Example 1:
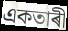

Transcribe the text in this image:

একতাৰী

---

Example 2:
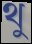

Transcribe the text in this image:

থু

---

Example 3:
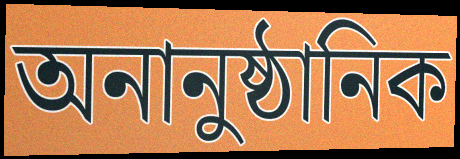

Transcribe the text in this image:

অনানুষ্ঠানিক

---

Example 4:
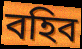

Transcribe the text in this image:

বহিব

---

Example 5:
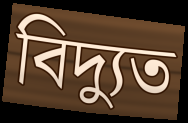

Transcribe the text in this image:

বিদ্যুত